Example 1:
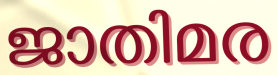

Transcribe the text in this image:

ജാതിമര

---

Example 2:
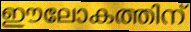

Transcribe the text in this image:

ഈലോകത്തിന്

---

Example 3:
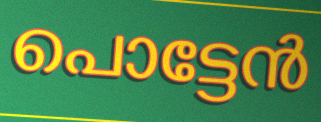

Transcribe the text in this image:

പൊട്ടേൻ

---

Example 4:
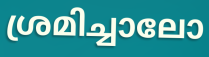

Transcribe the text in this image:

ശ്രമിച്ചാലോ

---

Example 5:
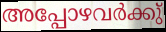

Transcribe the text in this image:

അപ്പോഴവർക്കു്